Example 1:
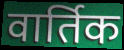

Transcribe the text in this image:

वार्तिक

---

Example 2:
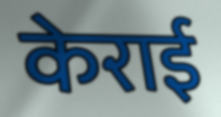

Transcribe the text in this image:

केराई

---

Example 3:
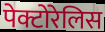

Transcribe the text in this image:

पेक्टोरेलिस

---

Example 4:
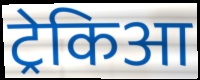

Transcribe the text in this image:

ट्रेकिआ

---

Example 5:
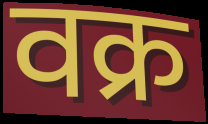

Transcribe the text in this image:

वक्र